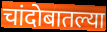
चांदोबातल्या